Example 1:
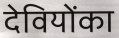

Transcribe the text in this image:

देवियोंका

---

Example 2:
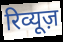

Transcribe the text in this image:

रिव्यूज़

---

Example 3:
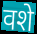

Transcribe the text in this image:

वशे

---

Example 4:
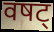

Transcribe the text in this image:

वषट्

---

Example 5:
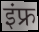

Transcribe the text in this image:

इंफ्र